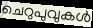
ചെറുപുവുകൾ